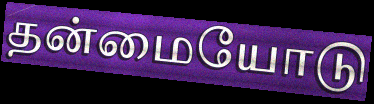
தன்மையோடு